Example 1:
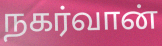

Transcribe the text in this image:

நகர்வான்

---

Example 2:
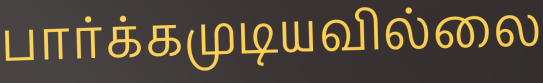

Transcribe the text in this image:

பார்க்கமுடியவில்லை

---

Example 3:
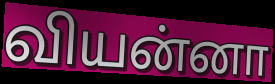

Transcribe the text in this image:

வியன்னா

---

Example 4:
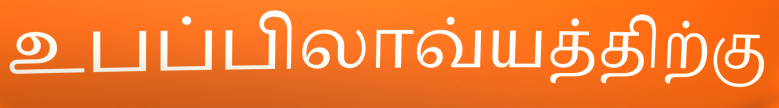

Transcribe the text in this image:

உபப்பிலாவ்யத்திற்கு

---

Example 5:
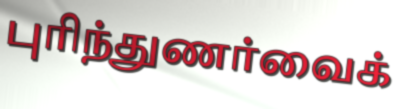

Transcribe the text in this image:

புரிந்துணர்வைக்